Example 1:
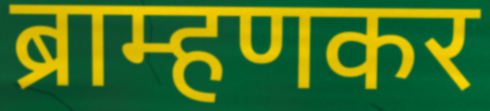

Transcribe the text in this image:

ब्राम्हणकर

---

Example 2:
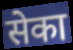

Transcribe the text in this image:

सेका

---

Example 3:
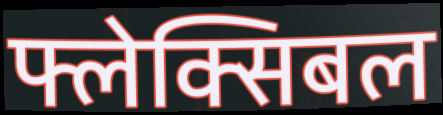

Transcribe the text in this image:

फ्लेक्सिबल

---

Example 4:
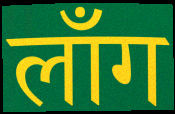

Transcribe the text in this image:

लाँग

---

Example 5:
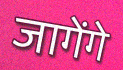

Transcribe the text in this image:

जागेंगे